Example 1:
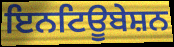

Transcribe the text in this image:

ਇਨਟਿਊਬੇਸ਼ਨ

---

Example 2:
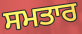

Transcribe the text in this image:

ਸਮਤਾਰ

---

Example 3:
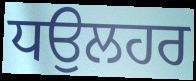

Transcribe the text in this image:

ਧਉਲਹਰ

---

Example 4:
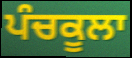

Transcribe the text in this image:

ਪੰਚਕੂਲਾ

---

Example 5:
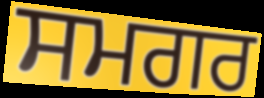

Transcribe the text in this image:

ਸਮਗਰ